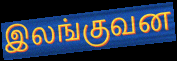
இலங்குவன